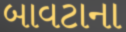
બાવટાના